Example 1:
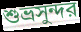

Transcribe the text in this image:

শুভ্রসুন্দর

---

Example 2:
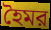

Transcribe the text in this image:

হৈমর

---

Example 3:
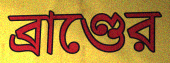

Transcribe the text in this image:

ব্রাণ্ডের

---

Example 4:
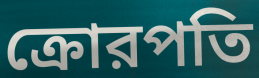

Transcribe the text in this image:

ক্রোরপতি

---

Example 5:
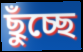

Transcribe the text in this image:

ছুঁচ্ছে